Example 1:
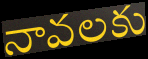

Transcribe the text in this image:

నావలకు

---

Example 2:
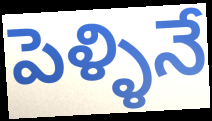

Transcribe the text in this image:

పెళ్ళినే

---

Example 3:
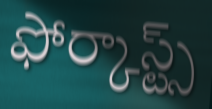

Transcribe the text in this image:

ఫోర్కాస్ట్స్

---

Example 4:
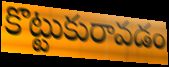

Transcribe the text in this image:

కొట్టుకురావడం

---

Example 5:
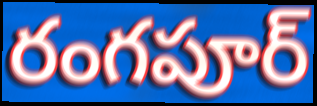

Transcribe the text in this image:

రంగపూర్